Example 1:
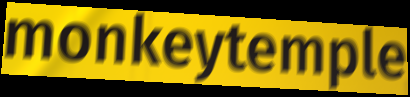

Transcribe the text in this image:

monkeytemple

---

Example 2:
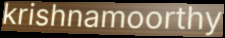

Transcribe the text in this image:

krishnamoorthy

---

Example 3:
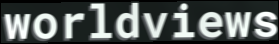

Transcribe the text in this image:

worldviews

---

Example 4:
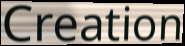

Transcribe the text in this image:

Creation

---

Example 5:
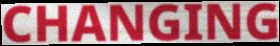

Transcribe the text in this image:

CHANGING